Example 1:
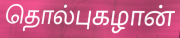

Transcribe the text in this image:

தொல்புகழான்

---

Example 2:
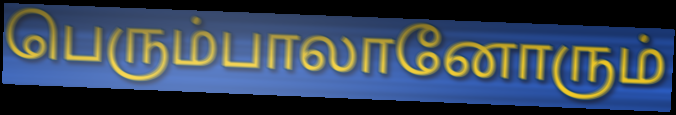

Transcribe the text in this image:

பெரும்பாலானோரும்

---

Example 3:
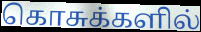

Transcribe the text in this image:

கொசுக்களில்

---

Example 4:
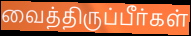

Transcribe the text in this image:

வைத்திருப்பீர்கள்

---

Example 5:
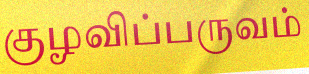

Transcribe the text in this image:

குழவிப்பருவம்